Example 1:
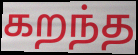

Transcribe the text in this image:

கறந்த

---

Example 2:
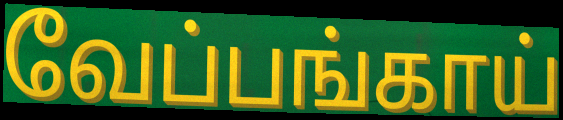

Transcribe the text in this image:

வேப்பங்காய்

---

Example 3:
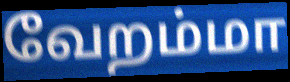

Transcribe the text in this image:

வேறம்மா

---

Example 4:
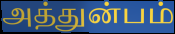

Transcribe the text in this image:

அத்துன்பம்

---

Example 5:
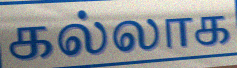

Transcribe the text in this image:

கல்லாக